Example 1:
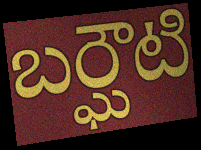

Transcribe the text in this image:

బర్ఘౌటి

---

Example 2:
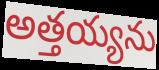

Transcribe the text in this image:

అత్తయ్యను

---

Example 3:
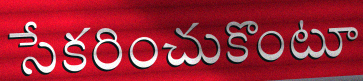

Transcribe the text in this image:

సేకరించుకొంటూ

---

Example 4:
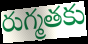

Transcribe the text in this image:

రుగ్మతకు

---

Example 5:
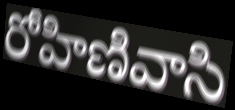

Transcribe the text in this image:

రోహిణివాసి